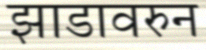
झाडावरुन